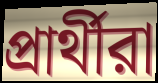
প্রার্থীরা